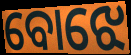
ବୋଝେ